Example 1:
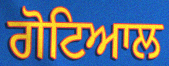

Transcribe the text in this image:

ਗੋਟਿਆਲ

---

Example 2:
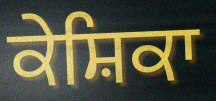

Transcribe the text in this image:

ਕੇਸ਼ਿਕਾ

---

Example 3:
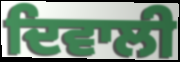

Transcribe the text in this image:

ਦਿਵਾਲੀ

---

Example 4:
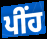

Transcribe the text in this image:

ਪੀਂਹ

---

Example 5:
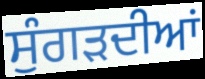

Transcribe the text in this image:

ਸੁੰਗੜਦੀਆਂ